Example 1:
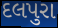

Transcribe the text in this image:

દલપુરા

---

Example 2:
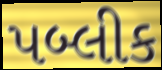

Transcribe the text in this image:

પબ્લીક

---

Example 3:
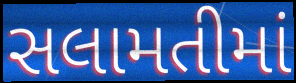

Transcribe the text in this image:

સલામતીમાં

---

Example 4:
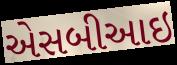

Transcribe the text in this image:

એસબીઆઇ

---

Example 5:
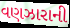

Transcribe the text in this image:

વણઝારાની